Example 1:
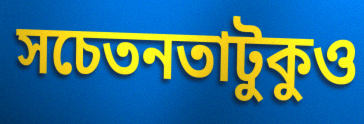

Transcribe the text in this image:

সচেতনতাটুকুও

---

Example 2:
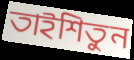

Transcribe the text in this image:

তাইশিতুন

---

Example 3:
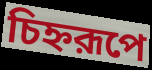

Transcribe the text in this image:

চিহ্নরূপে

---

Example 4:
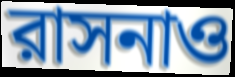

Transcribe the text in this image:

রাসনাও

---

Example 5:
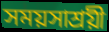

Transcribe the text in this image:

সময়সাশ্রয়ী